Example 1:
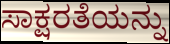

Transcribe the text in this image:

ಸಾಕ್ಷರತೆಯನ್ನು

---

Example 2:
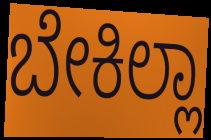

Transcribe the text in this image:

ಬೇಕಿಲ್ಲಾ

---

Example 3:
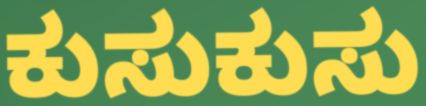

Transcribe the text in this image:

ಕುಸುಕುಸು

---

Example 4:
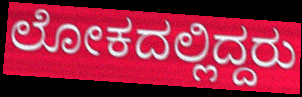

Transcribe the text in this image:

ಲೋಕದಲ್ಲಿದ್ದರು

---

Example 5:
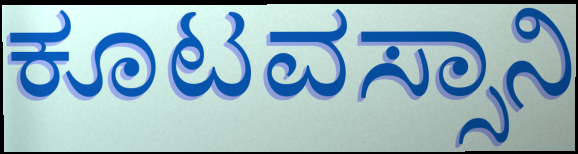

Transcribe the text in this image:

ಕೂಟವಸ್ಸಾನಿ